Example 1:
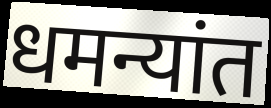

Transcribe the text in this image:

धमन्यांत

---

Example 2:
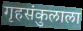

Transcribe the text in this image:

गृहसंकुलाला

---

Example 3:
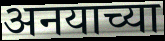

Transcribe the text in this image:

अनयाच्या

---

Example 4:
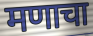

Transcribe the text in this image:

मणाचा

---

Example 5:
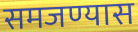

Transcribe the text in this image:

समजण्यास